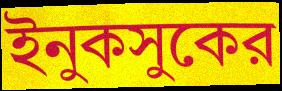
ইনুকসুকের